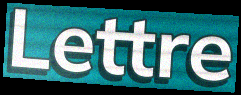
Lettre